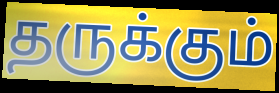
தருக்கும்